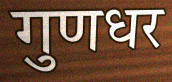
गुणधर